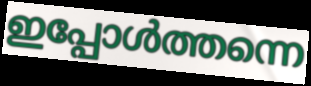
ഇപ്പോൾത്തന്നെ